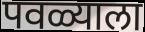
पवळ्याला